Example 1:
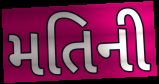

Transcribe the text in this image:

મતિની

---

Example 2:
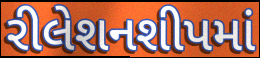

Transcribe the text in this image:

રીલેશનશીપમાં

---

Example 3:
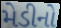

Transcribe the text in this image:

મેડીનો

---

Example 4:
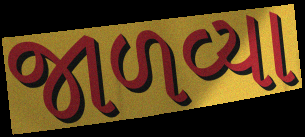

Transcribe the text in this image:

જાળવ્યા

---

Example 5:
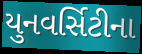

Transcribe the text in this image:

યુનવર્સિટીના